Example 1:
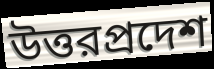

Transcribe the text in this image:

উত্তরপ্রদেশ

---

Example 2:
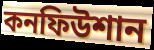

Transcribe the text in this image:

কনফিউশান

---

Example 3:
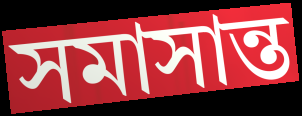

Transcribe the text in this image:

সমাসান্ত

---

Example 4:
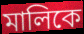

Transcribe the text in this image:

মালিকে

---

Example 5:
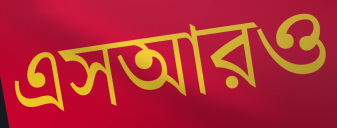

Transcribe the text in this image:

এসআরও